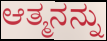
ಆತ್ಮನನ್ನು